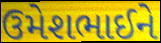
ઉમેશભાઈને